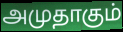
அமுதாகும்